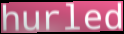
hurled